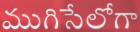
ముగిసేలోగా